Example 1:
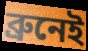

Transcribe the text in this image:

ব্রুনেই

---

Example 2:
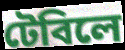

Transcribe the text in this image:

টেবিলে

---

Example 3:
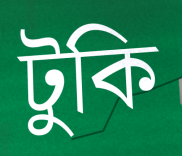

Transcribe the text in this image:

টুকি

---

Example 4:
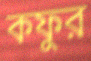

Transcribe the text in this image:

কফুর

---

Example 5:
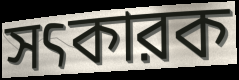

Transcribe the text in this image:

সৎকারক